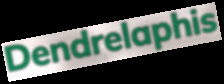
Dendrelaphis